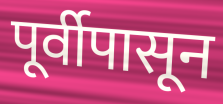
पूर्वीपासून